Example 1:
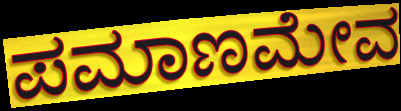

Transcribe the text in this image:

ಪಮಾಣಮೇವ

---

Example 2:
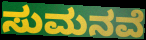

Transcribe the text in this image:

ಸುಮನವೆ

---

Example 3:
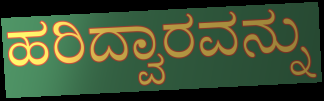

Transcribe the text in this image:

ಹರಿದ್ವಾರವನ್ನು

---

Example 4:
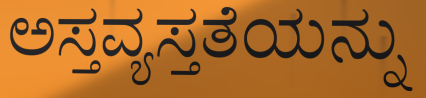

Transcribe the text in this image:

ಅಸ್ತವ್ಯಸ್ತತೆಯನ್ನು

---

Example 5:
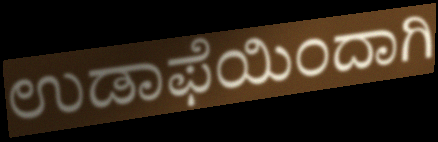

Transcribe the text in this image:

ಉಡಾಫೆಯಿಂದಾಗಿ